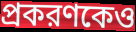
প্রকরণকেও